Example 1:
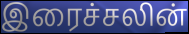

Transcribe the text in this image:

இரைச்சலின்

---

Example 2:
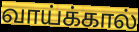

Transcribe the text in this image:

வாய்க்கால்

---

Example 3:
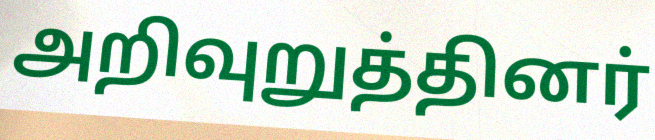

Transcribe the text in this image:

அறிவுறுத்தினர்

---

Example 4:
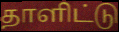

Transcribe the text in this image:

தாளிட்டு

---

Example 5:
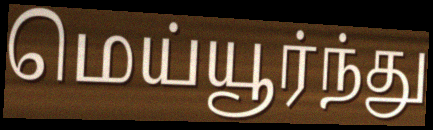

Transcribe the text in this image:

மெய்யூர்ந்து